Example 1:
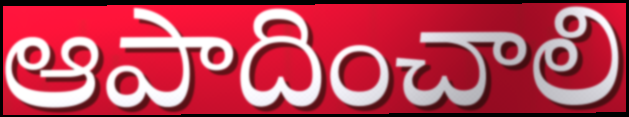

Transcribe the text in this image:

ఆపాదించాలి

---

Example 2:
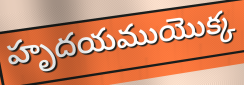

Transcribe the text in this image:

హృదయముయొక్క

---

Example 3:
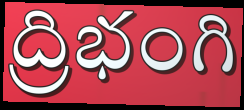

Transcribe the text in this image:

ద్రిభంగి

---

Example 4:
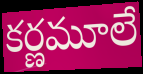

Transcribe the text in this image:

కర్ణమూలే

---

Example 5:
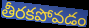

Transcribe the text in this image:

తీరకపోవడం